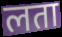
लता